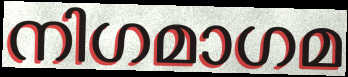
നിഗമാഗമ